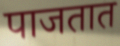
पाजतात